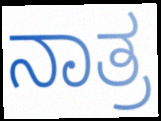
ನಾತ್ರ